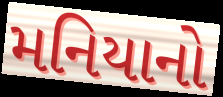
મનિયાનો